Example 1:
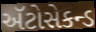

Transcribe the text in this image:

ઍટોસેકન્ડ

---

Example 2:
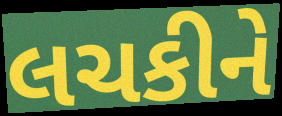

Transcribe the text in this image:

લચકીને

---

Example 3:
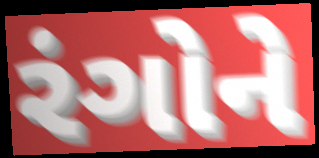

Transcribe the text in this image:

રંગોને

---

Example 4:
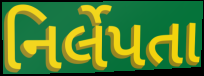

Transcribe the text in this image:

નિર્લેપતા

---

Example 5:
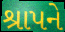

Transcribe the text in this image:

શ્રાપને